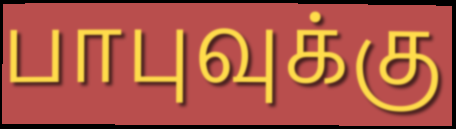
பாபுவுக்கு